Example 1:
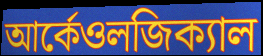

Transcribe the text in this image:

আর্কেওলজিক্যাল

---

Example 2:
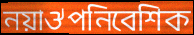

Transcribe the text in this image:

নয়াঔপনিবেশিক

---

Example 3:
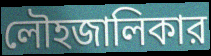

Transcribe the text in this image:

লৌহজালিকার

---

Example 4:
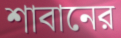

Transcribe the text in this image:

শাবানের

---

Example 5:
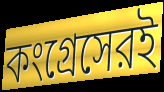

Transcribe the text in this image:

কংগ্রেসেরই